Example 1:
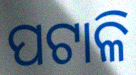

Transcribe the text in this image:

ପଟାଳି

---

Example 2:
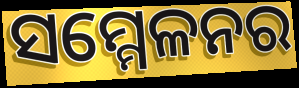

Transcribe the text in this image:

ସମ୍ମେଳନର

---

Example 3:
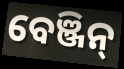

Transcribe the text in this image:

ବେଞ୍ଜିନ୍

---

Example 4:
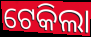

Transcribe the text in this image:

ଟେକିଲା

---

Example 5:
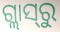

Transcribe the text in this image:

ଗ୍ଲାସ୍‍ରୁ